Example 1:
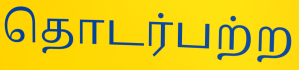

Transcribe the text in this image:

தொடர்பற்ற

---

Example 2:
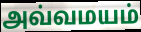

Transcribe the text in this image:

அவ்வமயம்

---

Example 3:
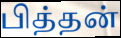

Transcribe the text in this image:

பித்தன்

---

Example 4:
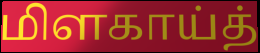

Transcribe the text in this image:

மிளகாய்த்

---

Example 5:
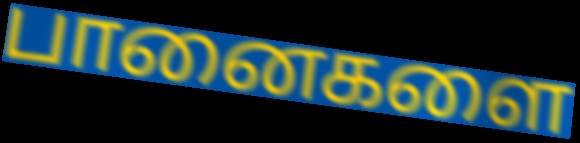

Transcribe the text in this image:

பானைகளை